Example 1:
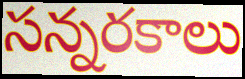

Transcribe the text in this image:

సన్నరకాలు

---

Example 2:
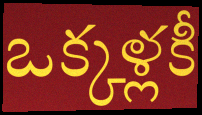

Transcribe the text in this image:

ఒక్కళ్లకీ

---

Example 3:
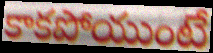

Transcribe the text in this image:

కాకపోయుంటే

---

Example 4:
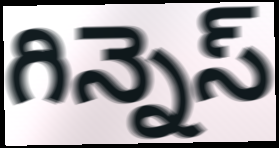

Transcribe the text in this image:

గిన్నెస్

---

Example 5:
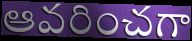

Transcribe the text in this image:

ఆవరించగా